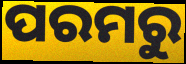
ପରମରୁ